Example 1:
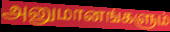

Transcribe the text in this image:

அனுமானங்களும்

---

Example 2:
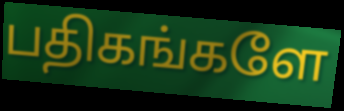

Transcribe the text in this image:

பதிகங்களே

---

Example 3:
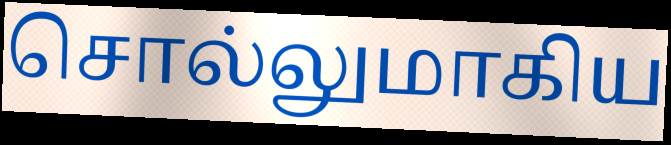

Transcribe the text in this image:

சொல்லுமாகிய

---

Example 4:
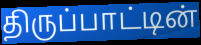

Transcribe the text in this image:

திருப்பாட்டின்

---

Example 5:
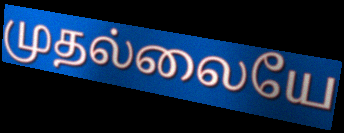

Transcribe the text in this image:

முதல்லையே